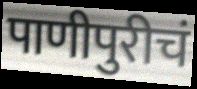
पाणीपुरीचं